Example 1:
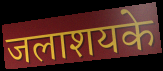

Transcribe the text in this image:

जलाशयके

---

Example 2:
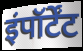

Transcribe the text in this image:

इंपॉर्टेंट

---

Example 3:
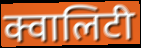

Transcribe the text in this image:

क्वालिटी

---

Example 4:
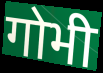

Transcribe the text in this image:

गोभी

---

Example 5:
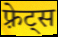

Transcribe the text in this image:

फ़्रेट्स